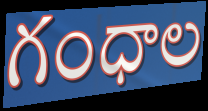
గంధాల